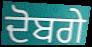
ਦੋਬਗੇ